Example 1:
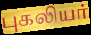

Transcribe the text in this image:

புகலியர்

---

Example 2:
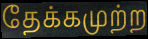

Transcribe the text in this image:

தேக்கமுற்ற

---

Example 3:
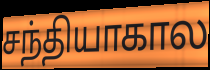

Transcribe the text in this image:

சந்தியாகால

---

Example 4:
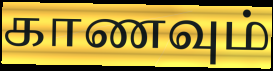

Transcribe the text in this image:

காணவும்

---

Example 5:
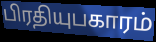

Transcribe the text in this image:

பிரதியுபகாரம்